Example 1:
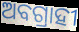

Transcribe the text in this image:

ଅବଗ୍ରାହୀ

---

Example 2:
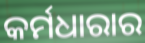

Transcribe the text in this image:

କର୍ମଧାରାର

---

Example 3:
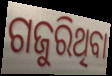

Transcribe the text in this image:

ଗଜୁରିଥିବା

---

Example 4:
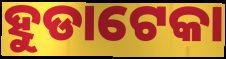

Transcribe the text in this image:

ହୁଡାଟେକା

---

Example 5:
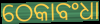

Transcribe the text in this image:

ଠେକାବଂଧା